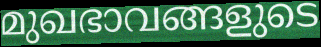
മുഖഭാവങ്ങളുടെ